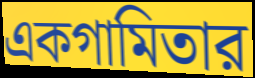
একগামিতার